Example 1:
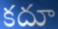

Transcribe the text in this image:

కదూ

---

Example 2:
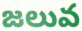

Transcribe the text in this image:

జలువ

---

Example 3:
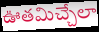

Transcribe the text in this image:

ఊతమిచ్చేలా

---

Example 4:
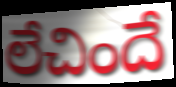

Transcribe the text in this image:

లేచిందే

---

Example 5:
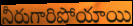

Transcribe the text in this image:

నీరుగారిపోయాయి